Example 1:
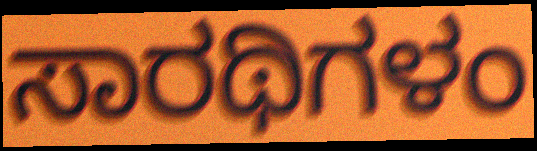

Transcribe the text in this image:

ಸಾರಥಿಗಳಂ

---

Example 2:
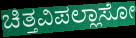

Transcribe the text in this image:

ಚಿತ್ತವಿಪಲ್ಲಾಸೋ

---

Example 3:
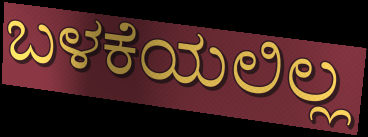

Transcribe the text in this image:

ಬಳಕೆಯಲಿಲ್ಲ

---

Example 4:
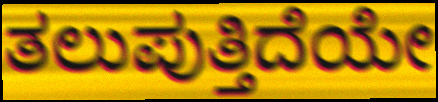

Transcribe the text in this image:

ತಲುಪುತ್ತಿದೆಯೇ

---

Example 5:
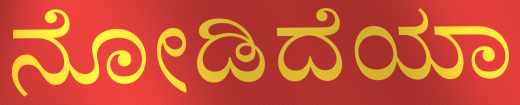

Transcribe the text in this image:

ನೋಡಿದೆಯಾ